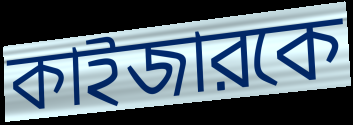
কাইজারকে